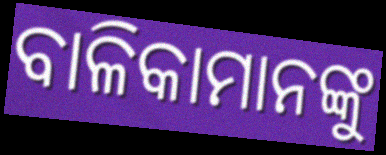
ବାଳିକାମାନଙ୍କୁ